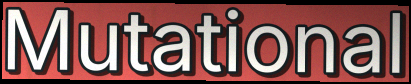
Mutational